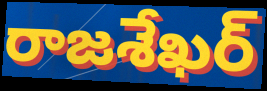
రాజశేఖర్